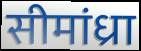
सीमांध्रा